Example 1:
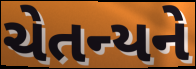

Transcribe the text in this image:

ચેતન્યને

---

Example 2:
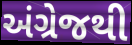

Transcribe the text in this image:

અંગ્રેજથી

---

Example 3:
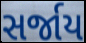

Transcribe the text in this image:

સર્જાય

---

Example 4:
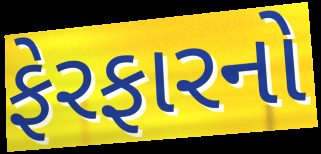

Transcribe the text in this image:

ફેરફારનો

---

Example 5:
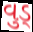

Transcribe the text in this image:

વુડ્